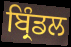
ਬ੍ਰਿੰਡਲ